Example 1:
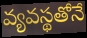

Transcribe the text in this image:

వ్యవస్థతోనే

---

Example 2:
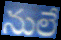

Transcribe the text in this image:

నులే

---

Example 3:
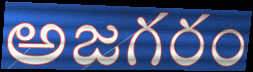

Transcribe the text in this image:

అజగరం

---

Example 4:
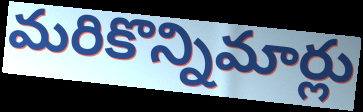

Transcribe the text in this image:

మరికొన్నిమార్లు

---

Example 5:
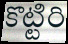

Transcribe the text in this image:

కొట్టిరి